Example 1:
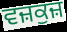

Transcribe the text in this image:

ਵਜ਼ਕੁਜ਼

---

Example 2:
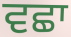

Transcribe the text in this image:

ਵਛਾ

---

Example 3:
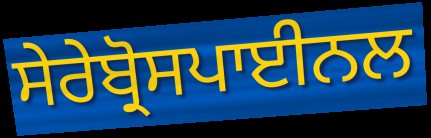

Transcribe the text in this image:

ਸੇਰੇਬ੍ਰੋਸਪਾਈਨਲ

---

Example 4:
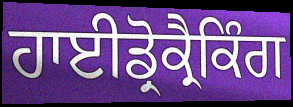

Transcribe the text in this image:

ਹਾਈਡ੍ਰੋਕ੍ਰੈਕਿੰਗ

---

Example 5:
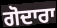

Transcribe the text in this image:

ਗੋਦਾਰਾ